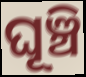
ଘୂଞ୍ଚି